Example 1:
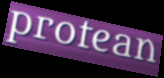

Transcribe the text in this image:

protean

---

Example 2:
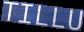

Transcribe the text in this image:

TILLU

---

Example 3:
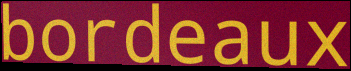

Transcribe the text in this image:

bordeaux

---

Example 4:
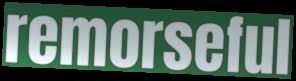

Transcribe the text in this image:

remorseful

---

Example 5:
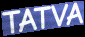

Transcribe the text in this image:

TATVA